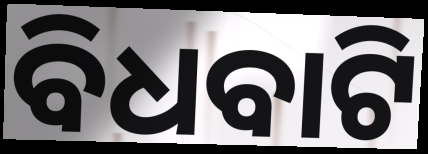
ବିଧବାଟି